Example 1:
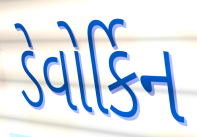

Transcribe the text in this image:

ડેવોર્કિન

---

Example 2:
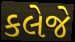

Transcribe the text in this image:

કલેજે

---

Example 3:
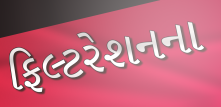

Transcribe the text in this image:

ફિલ્ટરેશનના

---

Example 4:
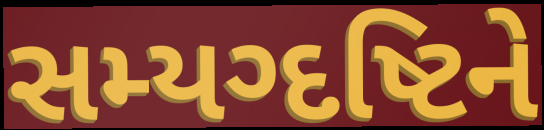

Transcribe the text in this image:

સમ્યગ્દષ્ટિને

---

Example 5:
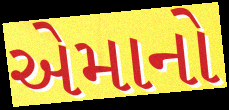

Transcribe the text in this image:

એમાનો